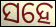
ସହେ